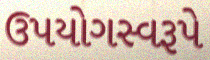
ઉપયોગસ્વરૂપે